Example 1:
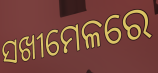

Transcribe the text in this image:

ସଖୀମେଳରେ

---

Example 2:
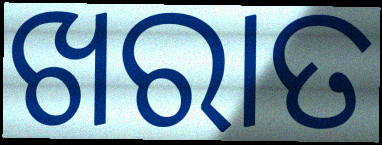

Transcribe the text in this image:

ଖରାତ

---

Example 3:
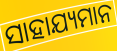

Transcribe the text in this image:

ସାହାଯ୍ୟମାନ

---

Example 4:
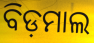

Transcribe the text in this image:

ବିଡ଼ମାଲ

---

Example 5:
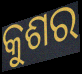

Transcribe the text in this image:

କୁଶର